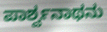
ಪಾರ್ಶ್ವನಾಥನು